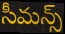
సీమన్స్